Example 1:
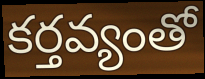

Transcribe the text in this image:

కర్తవ్యంతో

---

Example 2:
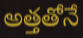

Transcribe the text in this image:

అత్తతోనే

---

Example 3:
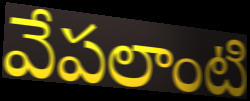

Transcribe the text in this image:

వేపలాంటి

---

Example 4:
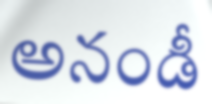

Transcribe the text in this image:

అనండీ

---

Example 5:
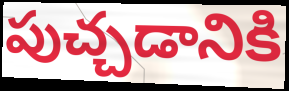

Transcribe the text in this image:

పుచ్చడానికి